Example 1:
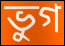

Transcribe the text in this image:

ভুগ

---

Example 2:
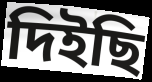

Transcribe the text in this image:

দিইছি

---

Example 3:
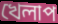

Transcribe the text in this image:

খেলাপ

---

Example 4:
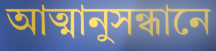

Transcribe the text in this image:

আত্মানুসন্ধানে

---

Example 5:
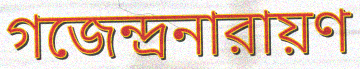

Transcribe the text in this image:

গজেন্দ্রনারায়ণ